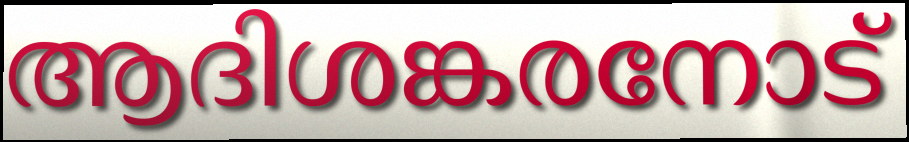
ആദിശങ്കരനോട്